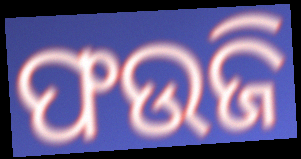
ଫଉଜି